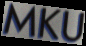
MKU